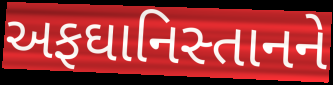
અફઘાનિસ્તાનને